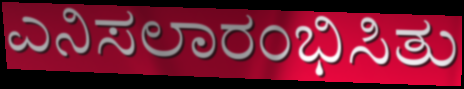
ಎನಿಸಲಾರಂಭಿಸಿತು